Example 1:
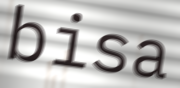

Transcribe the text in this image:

bisa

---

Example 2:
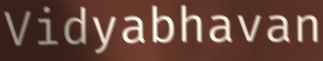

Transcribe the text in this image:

Vidyabhavan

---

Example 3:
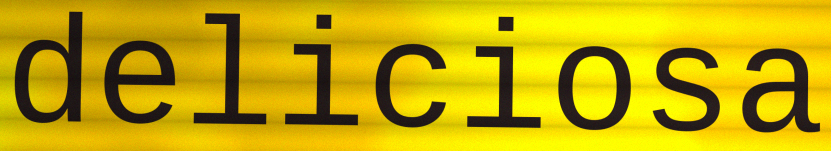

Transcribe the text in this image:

deliciosa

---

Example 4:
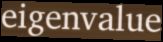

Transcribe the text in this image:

eigenvalue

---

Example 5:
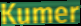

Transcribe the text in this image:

Kumer